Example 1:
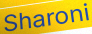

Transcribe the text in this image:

Sharoni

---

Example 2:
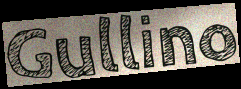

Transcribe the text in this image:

Gullino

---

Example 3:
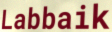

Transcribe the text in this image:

Labbaik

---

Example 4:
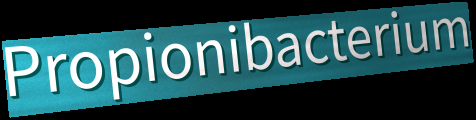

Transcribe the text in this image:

Propionibacterium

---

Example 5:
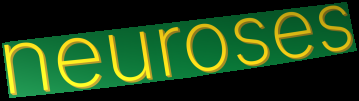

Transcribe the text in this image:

neuroses